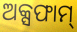
ଅକ୍ସଫାମ୍